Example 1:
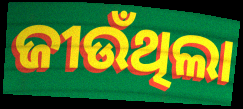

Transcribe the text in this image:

ଜୀଉଁଥିଲା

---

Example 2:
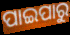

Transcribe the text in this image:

ପାଇପାରୁ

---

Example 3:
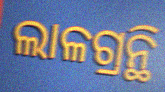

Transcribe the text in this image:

ଲାଳଗ୍ରନ୍ଥି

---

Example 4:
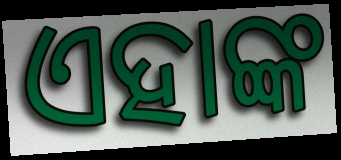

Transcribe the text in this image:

ଏହାଙ୍କ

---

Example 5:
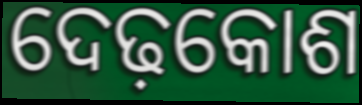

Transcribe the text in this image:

ଦେଢ଼କୋଶ